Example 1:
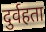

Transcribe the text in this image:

दुर्वहता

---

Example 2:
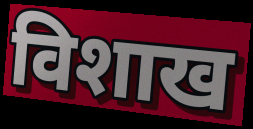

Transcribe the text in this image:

विशाख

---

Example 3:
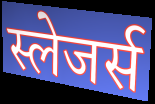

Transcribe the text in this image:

स्लेजर्स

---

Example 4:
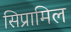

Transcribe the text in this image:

सिप्रामिल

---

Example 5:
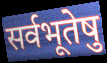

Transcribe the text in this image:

सर्वभूतेषु